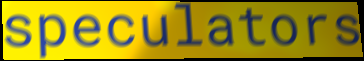
speculators